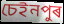
চেইনপুৰ